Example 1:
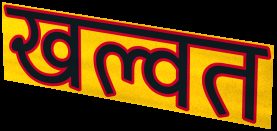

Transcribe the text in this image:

खल्वत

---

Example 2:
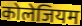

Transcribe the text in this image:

कोलेजियम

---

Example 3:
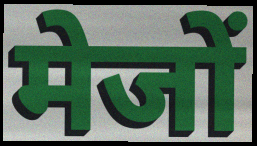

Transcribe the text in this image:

मेजों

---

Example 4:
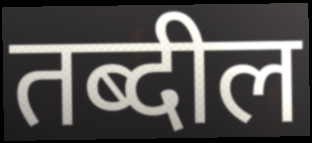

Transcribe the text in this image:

तब्‍दील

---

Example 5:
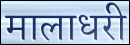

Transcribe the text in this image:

मालाधरी